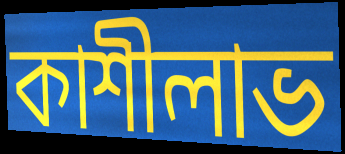
কাশীলাভ